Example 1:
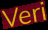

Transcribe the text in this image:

Veri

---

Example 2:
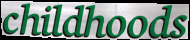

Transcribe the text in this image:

childhoods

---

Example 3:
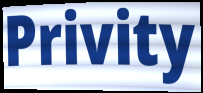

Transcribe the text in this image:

Privity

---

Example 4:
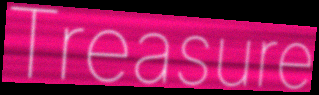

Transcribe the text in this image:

Treasure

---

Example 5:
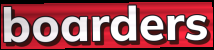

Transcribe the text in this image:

boarders